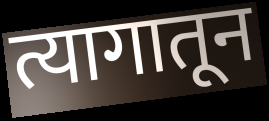
त्यागातून